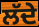
ਲੱਦੇ